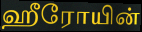
ஹீரோயின்